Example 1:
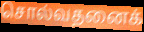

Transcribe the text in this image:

சொல்வதனைக்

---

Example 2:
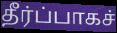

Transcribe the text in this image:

தீர்ப்பாகச்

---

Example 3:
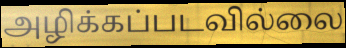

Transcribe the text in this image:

அழிக்கப்படவில்லை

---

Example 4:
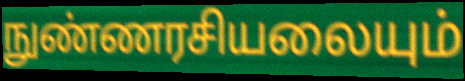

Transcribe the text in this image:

நுண்ணரசியலையும்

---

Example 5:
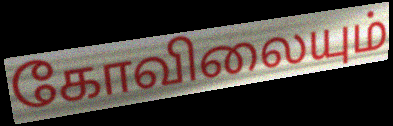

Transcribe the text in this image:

கோவிலையும்